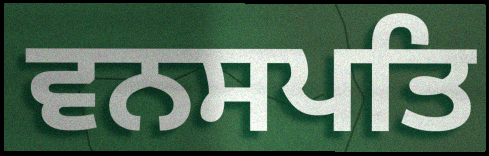
ਵਨਸਪਤਿ